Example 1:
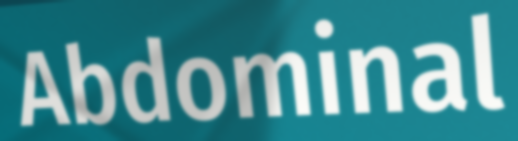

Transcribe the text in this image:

Abdominal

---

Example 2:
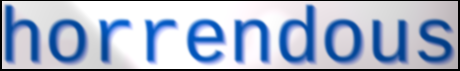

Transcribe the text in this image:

horrendous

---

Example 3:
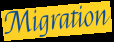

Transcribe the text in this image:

Migration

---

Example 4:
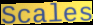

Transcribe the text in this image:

Scales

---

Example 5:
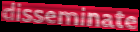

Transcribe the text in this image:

disseminate